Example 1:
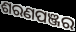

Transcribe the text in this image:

ଶରଣପଞ୍ଜର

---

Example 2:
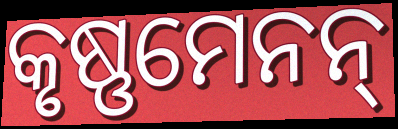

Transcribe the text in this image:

କୃଷ୍ଣମେନନ୍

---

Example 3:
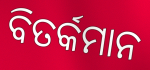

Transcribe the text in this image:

ବିତର୍କମାନ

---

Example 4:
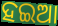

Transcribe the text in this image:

ହଇଆ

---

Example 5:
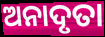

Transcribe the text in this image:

ଅନାଦୃତା